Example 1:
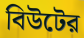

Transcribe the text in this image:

বিউটের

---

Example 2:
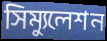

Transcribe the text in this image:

সিম্যুলেশন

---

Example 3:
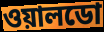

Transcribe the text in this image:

ওয়ালডো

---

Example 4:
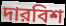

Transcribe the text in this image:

দারবিশ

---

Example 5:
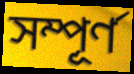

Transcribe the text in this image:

সম্পূর্ণ